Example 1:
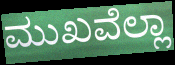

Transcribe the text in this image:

ಮುಖವೆಲ್ಲಾ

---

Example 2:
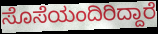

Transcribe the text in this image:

ಸೊಸೆಯಂದಿರಿದ್ದಾರೆ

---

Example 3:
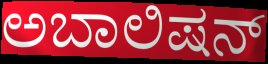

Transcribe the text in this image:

ಅಬಾಲಿಷನ್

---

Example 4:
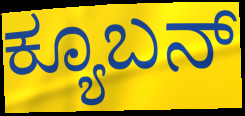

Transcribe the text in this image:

ಕ್ಯೂಬನ್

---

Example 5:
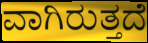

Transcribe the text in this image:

ವಾಗಿರುತ್ತದೆ